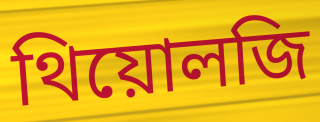
থিয়োলজি